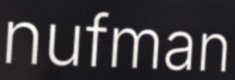
nufman